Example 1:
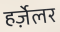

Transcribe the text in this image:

हर्ज़ेलर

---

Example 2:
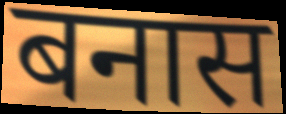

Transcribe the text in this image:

बनास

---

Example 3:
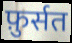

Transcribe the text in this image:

फ़ुर्सत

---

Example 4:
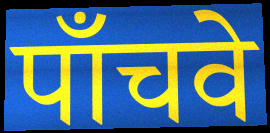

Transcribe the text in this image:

पाँचवे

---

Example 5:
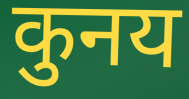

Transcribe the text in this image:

कुनय